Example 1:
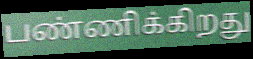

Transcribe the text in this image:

பண்ணிக்கிறது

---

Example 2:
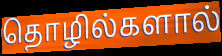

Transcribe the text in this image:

தொழில்களால்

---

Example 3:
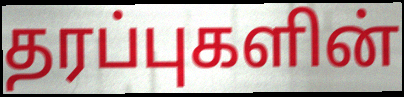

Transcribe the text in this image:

தரப்புகளின்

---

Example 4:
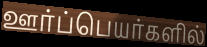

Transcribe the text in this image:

ஊர்ப்பெயர்களில்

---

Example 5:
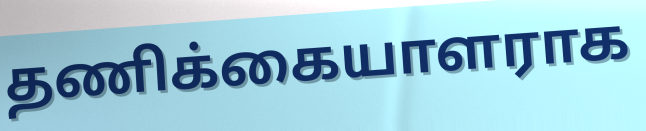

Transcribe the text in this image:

தணிக்கையாளராக